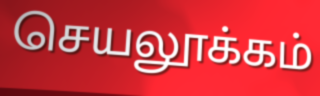
செயலூக்கம்